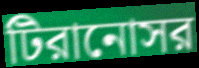
টিরানোসর